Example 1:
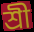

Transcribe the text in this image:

শ্রী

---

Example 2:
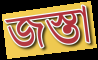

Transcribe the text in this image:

জস্তা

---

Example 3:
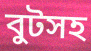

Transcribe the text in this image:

বুটসহ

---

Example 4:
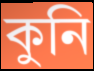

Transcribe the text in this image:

কুনি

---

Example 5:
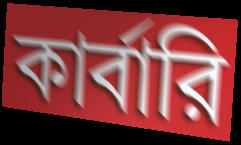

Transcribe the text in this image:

কার্বারি